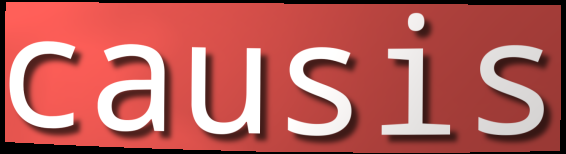
causis